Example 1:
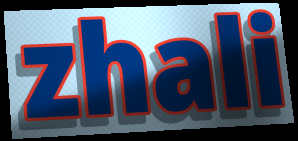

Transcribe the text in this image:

zhali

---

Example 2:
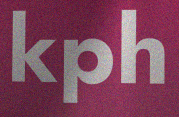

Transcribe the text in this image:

kph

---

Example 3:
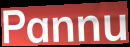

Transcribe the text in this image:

Pannu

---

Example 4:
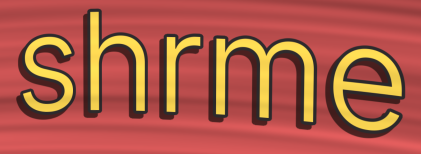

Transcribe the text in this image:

shrme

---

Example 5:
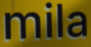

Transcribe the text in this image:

mila